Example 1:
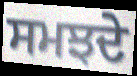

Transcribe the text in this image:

ਸਮਝਦੇ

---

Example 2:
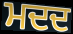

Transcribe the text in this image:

ਮਦਦ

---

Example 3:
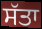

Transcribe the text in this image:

ਸੱਤਾ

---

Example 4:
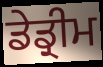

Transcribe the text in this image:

ਡੇਡ੍ਰੀਮ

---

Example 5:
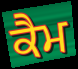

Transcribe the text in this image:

ਕੈਮ